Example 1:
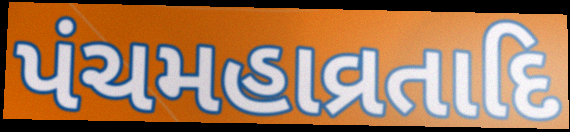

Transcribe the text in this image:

પંચમહાવ્રતાદિ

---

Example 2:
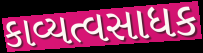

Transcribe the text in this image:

કાવ્યત્વસાધક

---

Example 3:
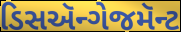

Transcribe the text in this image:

ડિસઍન્ગેજમૅન્ટ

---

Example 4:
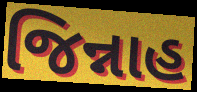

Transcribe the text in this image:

જિન્નાહ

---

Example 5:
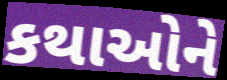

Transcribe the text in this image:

કથાઓને